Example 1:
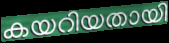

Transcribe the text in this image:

കയറിയതായി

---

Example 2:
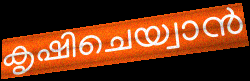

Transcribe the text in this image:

കൃഷിചെയ്വാൻ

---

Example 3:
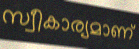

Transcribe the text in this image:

സ്വീകാര്യമാണ്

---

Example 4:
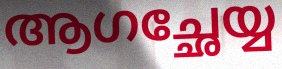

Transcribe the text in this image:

ആഗച്ഛേയ്യ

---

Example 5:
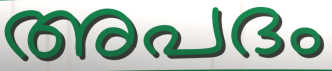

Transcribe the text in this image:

അപദം